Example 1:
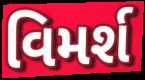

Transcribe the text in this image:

વિમર્શ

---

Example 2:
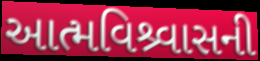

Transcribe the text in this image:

આત્મવિશ્ર્વાસની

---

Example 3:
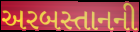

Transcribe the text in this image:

અરબસ્તાનની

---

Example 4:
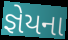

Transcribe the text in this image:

જ્ઞેયના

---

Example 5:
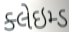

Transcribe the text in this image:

ક્લેઇમ્ડ